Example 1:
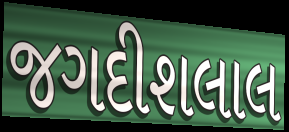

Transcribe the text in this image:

જગદીશલાલ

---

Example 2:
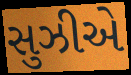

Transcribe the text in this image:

સુઝીએ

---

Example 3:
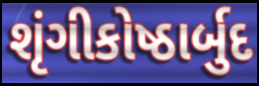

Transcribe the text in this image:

શૃંગીકોષ્ઠાર્બુદ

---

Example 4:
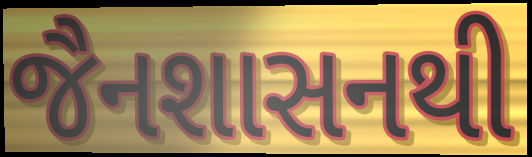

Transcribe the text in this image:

જૈનશાસનથી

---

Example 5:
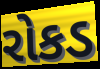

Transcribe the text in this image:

રોકડ